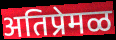
अतिप्रेमळ